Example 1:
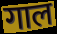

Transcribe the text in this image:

गाल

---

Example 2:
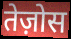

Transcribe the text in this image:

तेज़ोस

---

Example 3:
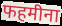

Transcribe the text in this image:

फहमीना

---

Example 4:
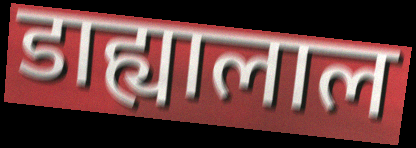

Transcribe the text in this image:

डाह्यालाल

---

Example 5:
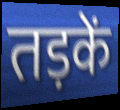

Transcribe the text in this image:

तड़कें